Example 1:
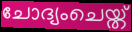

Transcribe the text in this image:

ചോദ്യംചെയ്ത്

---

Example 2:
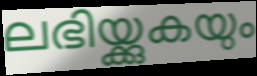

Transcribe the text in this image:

ലഭിയ്ക്കുകയും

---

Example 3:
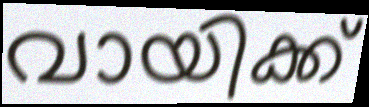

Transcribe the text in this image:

വായിക്ക്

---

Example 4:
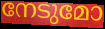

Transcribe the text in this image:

നേടുമോ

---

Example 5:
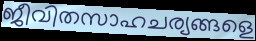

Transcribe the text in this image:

ജീവിതസാഹചര്യങ്ങളെ